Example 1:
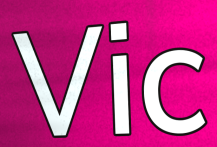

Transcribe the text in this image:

Vic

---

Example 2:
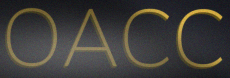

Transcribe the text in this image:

OACC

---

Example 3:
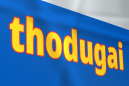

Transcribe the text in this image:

thodugai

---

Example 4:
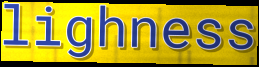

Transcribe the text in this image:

lighness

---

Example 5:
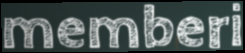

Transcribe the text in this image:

memberi